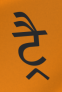
ट्रै